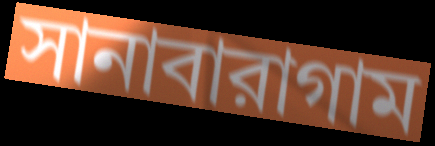
সানাবারাগাম